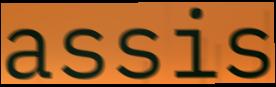
assis